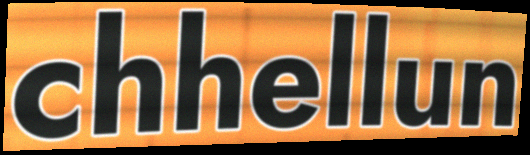
chhellun